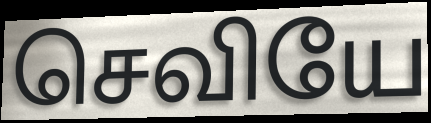
செவியே